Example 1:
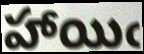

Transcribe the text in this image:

హాయిఁ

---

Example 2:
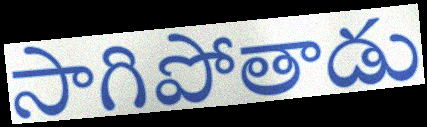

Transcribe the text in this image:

సాగిపోతాడు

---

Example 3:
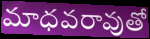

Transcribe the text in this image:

మాధవరావుతో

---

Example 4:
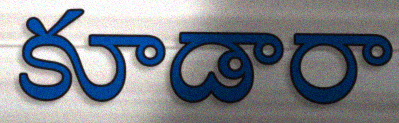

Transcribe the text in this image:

కూడారా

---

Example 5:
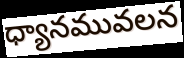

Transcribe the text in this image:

ధ్యానమువలన